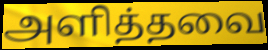
அளித்தவை